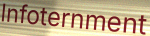
Infoternment